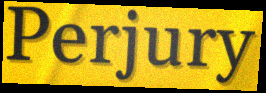
Perjury